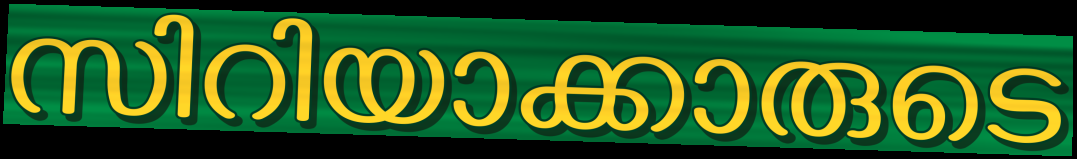
സിറിയാക്കാരുടെ